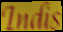
Indis